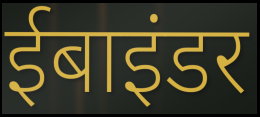
ईबाइंडर